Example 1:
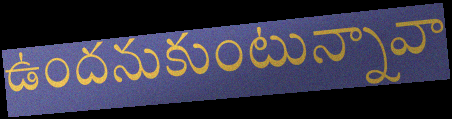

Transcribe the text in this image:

ఉందనుకుంటున్నావా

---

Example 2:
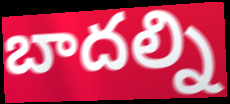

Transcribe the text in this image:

బాదల్ని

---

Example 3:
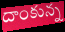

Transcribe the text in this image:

దాంకున్న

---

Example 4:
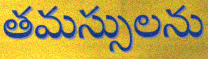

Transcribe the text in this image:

తమస్సులను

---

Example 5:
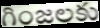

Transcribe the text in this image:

గింజలకు